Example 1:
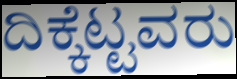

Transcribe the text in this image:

ದಿಕ್ಕೆಟ್ಟವರು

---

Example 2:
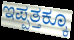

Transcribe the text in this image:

ಇಪ್ಪತ್ತಕ್ಕೂ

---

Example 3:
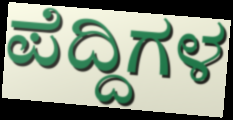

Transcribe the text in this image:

ಪೆದ್ದಿಗಳ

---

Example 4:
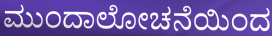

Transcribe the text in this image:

ಮುಂದಾಲೋಚನೆಯಿಂದ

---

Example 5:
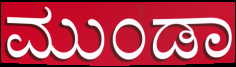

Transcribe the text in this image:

ಮುಂಡಾ